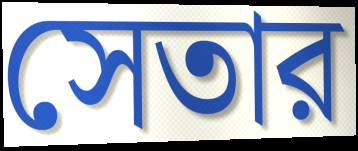
সেতার